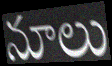
నూలు